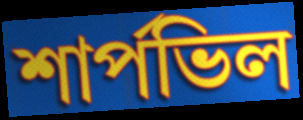
শার্পভিল